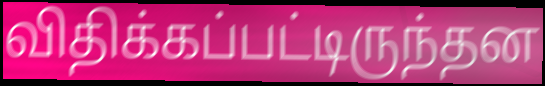
விதிக்கப்பட்டிருந்தன